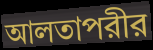
আলতাপরীর